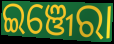
ଇଞ୍ଜେରା